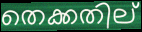
തെക്കതില്